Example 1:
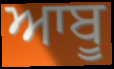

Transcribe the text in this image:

ਆਬੂ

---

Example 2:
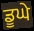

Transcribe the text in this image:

ਡੂਘੇ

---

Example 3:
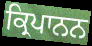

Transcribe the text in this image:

ਕ੍ਰਿਪਾਨਨ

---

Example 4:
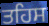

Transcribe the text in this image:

ਤਹਿਸ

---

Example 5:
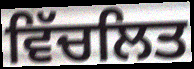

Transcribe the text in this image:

ਵਿੱਚਲਿਤ